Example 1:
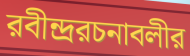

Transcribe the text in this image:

রবীন্দ্ররচনাবলীর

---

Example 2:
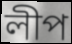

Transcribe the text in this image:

লীপ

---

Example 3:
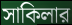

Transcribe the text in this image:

সাকিলার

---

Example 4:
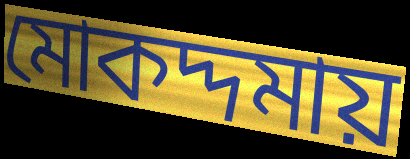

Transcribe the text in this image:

মোকদ্দমায়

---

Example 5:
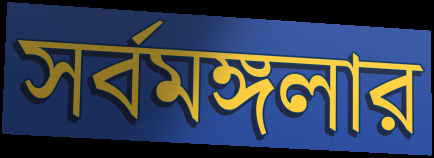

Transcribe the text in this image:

সর্বমঙ্গলার